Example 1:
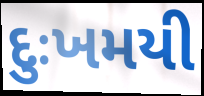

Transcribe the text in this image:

દુઃખમયી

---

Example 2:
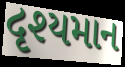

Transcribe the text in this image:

દૃશ્યમાન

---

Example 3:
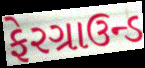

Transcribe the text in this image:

ફેરગ્રાઉન્ડ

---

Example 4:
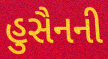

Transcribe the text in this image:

હુસૈનની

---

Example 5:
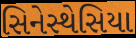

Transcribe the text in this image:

સિનેસ્થેસિયા